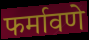
फर्मावणे